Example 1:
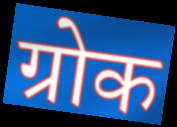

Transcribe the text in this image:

ग्रोक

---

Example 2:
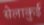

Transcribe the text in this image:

सेलाकुई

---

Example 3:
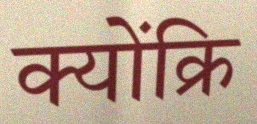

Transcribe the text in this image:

क्योंक्रि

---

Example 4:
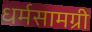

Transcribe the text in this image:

धर्मसामग्री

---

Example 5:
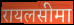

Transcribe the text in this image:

रायलसीमा